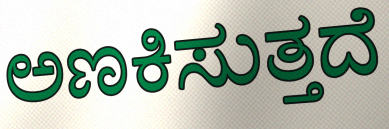
ಅಣಕಿಸುತ್ತದೆ